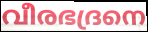
വീരഭദ്രനെ